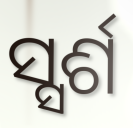
ସ୍ସର୍ଶ